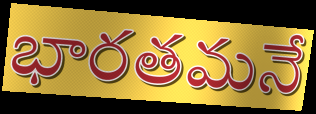
భారతమనే